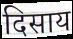
दिसाय